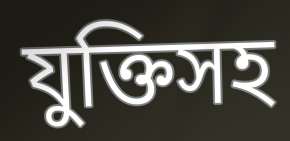
যুক্তিসহ